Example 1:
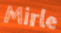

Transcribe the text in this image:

Mirle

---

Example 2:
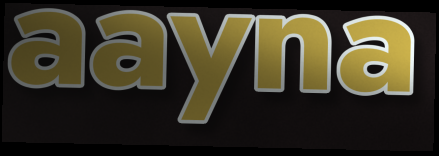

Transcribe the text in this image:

aayna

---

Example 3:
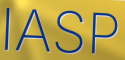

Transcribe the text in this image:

IASP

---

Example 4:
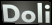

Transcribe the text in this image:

Doli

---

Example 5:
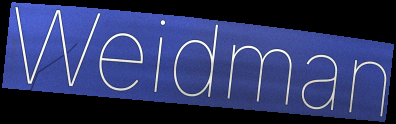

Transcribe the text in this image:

Weidman